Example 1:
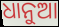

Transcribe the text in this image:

ଧାନୁଆ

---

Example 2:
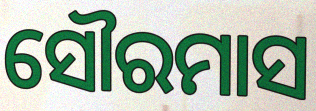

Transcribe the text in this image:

ସୌରମାସ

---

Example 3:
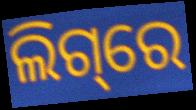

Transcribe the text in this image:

ଲିଗ୍‌ରେ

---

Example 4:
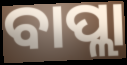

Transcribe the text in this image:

ବାପ୍ଲା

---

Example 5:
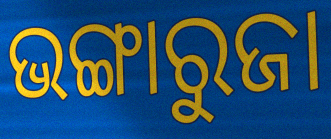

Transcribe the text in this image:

ଭଙ୍ଗାରୁଜା